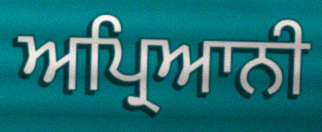
ਅਪ੍ਰਿਆਨੀ